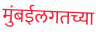
मुंबईलगतच्या